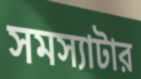
সমস্যাটার